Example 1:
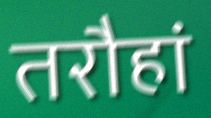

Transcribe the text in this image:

तरौहां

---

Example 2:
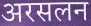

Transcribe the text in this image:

अरसलन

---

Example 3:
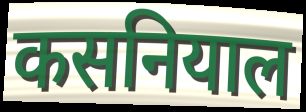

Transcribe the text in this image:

कसनियाल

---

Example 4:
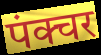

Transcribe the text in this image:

पंक्‍चर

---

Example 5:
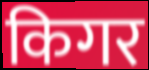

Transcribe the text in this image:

किगर